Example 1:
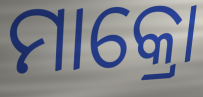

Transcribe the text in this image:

ମାକ୍ରୋ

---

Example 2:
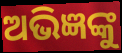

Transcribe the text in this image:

ଅଭିଜ୍ଞଙ୍କୁ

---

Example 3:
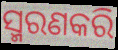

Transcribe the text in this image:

ସ୍ମରଣକରି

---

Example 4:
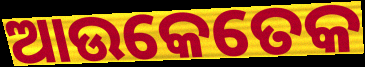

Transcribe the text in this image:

ଆଉକେତେକ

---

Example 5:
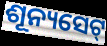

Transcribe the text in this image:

ଶୂନ୍ୟସେଟ୍